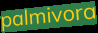
palmivora